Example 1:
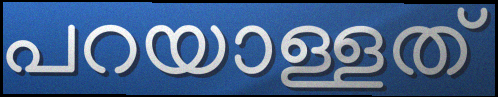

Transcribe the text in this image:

പറയാള്ളത്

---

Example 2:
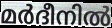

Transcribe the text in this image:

മർദീനിൽ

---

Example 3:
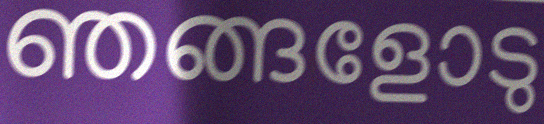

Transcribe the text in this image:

ഞങ്ങളോടു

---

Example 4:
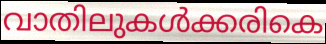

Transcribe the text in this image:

വാതിലുകൾക്കരികെ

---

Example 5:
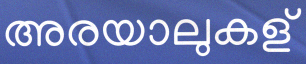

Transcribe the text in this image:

അരയാലുകള്